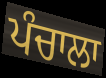
ਪੰਚਾਲਾ